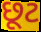
છૂટ